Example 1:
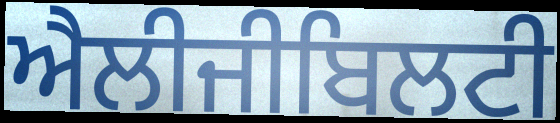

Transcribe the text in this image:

ਐਲੀਜੀਬਿਲਟੀ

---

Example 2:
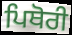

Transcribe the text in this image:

ਪਿਥੋਰੀ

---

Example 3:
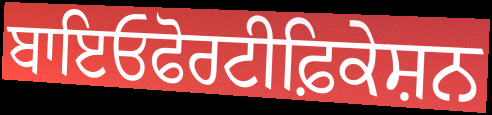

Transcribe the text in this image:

ਬਾਇਓਫੋਰਟੀਫ਼ਿਕੇਸ਼ਨ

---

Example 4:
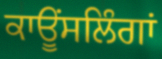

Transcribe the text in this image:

ਕਾਊਂਸਲਿੰਗਾਂ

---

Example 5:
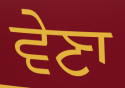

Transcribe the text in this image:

ਵੇਣਾ